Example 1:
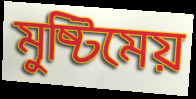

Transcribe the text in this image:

মুষ্টিমেয়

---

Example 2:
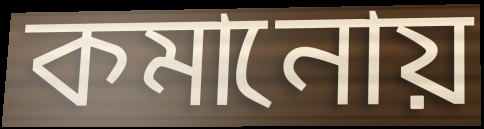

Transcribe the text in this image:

কমানোয়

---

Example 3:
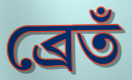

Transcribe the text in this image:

ব্রেতঁ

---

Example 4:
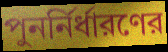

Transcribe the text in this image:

পুনর্নির্ধারণের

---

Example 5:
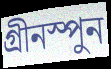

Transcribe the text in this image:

গ্রীনস্পুন